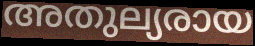
അതുല്യരായ